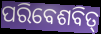
ପରିବେଶବିତ୍